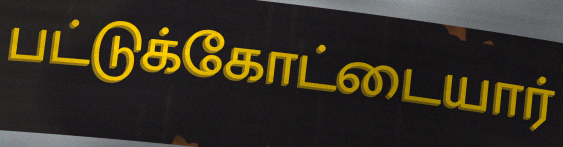
பட்டுக்கோட்டையார்